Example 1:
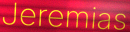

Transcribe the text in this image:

Jeremias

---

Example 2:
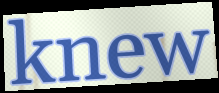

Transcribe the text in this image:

knew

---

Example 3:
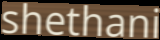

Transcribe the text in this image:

shethani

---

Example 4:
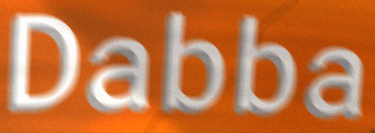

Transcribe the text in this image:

Dabba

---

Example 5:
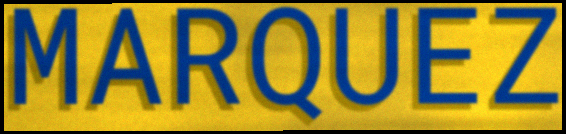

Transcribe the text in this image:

MARQUEZ